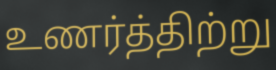
உணர்த்திற்று